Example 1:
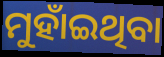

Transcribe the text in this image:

ମୁହାଁଇଥିବା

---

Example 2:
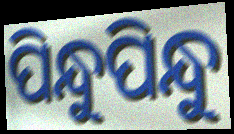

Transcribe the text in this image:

ପିନ୍ଧୁପିନ୍ଧୁ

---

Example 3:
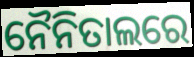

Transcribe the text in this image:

ନୈନିତାଲରେ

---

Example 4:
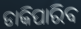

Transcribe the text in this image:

ଡାକିପାରିବ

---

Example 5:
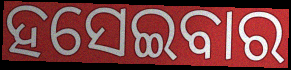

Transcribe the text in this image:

ହସେଇବାର